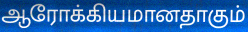
ஆரோக்கியமானதாகும்